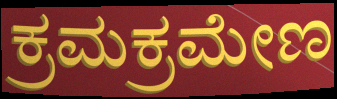
ಕ್ರಮಕ್ರಮೇಣ